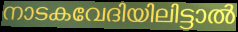
നാടകവേദിയിലിട്ടാൽ